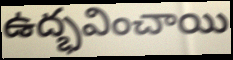
ఉద్భవించాయి